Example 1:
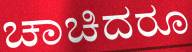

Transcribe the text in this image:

ಚಾಚಿದರೂ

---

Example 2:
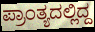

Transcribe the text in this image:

ಪ್ರಾಂತ್ಯದಲ್ಲಿದ್ದ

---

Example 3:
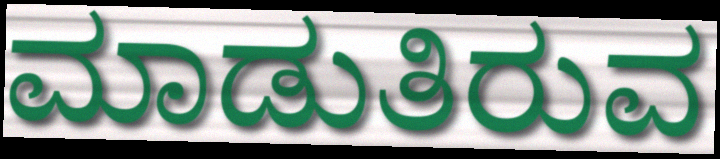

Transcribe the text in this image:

ಮಾಡುತಿರುವ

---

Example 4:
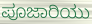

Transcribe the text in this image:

ಪೂಜಾರಿಯು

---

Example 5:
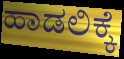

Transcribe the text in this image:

ಹಾಡಲಿಕ್ಕೆ